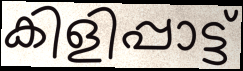
കിളിപ്പാട്ട്